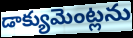
డాక్యుమెంట్లను